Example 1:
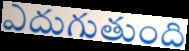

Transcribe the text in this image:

ఎదుగుతుంది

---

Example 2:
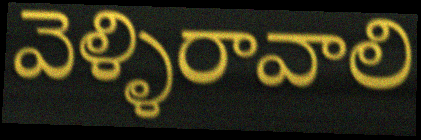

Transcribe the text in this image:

వెళ్ళిరావాలి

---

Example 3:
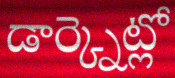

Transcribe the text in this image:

డార్క్నెట్లో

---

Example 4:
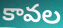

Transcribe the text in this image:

కావల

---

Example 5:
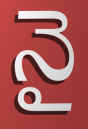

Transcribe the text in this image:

నై